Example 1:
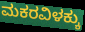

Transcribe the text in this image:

ಮಕರವಿಳಕ್ಕು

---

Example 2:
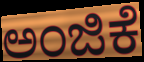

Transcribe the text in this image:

ಅಂಜಿಕೆ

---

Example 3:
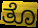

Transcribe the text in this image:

ತೊ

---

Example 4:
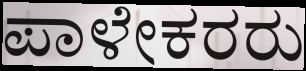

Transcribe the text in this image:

ಪಾಳೇಕರರು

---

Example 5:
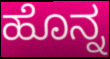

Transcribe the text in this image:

ಹೊನ್ನ